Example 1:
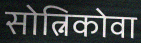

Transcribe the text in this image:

सोत्निकोवा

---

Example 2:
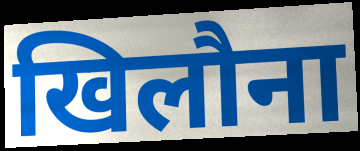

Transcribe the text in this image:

खिलौना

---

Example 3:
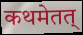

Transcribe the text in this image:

कथमेतत्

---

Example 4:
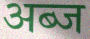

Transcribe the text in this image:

अब्ज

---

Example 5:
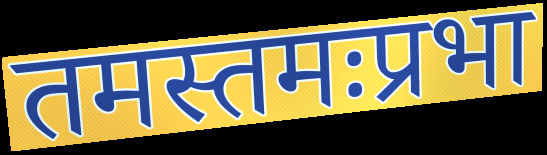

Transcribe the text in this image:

तमस्तमःप्रभा